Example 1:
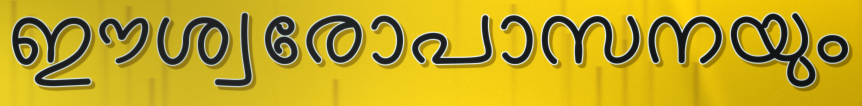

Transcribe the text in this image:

ഈശ്വരോപാസനയും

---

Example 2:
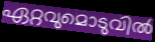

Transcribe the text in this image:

ഏറ്റവുമൊടുവിൽ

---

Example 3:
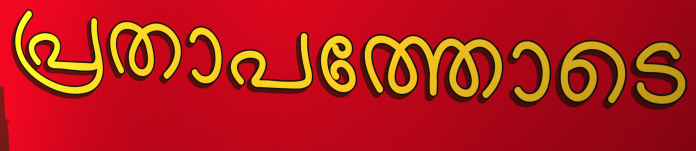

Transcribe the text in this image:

പ്രതാപത്തോടെ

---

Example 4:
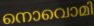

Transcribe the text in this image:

നൊവൊമി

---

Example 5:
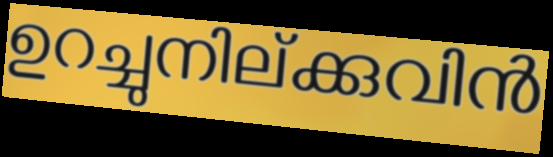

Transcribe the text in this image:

ഉറച്ചുനില്ക്കുവിൻ